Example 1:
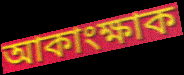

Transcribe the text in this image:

আকাংক্ষাক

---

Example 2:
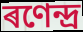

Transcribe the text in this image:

ৰণেন্দ্ৰ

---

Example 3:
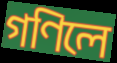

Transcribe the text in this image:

গণিলে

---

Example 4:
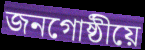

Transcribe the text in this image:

জনগোষ্ঠীয়ে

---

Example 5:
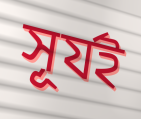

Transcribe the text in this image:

সূৰ্যই